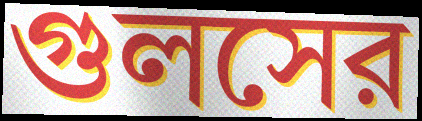
গুলসের